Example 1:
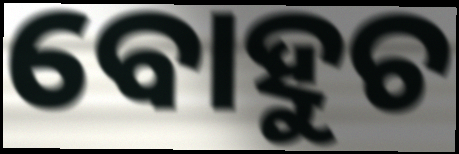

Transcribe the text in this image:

ବୋହୁଚ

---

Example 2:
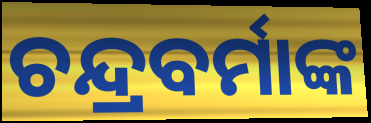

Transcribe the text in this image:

ଚନ୍ଦ୍ରବର୍ମାଙ୍କ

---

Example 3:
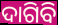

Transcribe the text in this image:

ଦାଗିବି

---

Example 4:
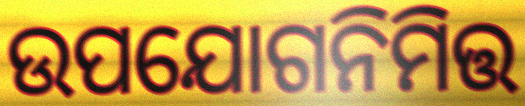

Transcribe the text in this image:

ଉପଯୋଗନିମିତ୍ତ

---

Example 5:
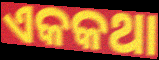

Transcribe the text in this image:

ଏକକଥା